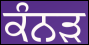
ਕੰਨਡ਼